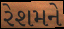
રેશમને